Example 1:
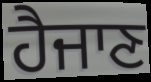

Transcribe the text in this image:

ਹੈਜਾਣ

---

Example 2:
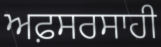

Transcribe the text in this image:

ਅਫ਼ਸਰਸਾਹੀ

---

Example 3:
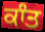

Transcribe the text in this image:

ਕਾੰਤ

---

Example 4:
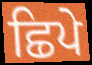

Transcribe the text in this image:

ਛਿਪੇ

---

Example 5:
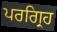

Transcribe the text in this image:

ਪਰਗ੍ਰਿਹ